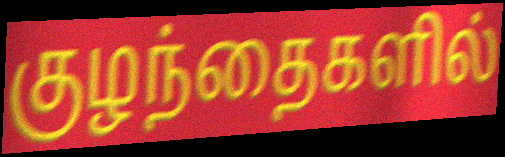
குழந்தைகளில்